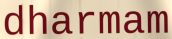
dharmam